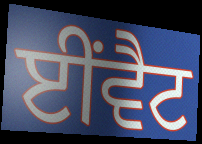
ਈਂਵੈਟ